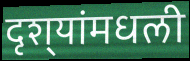
दृश्यांमधली